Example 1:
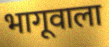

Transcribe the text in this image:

भागूवाला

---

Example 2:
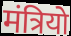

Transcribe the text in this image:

मंत्रियो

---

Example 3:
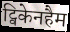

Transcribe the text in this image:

ट्विकेनहैम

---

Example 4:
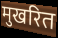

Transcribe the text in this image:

मुखरित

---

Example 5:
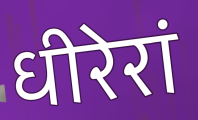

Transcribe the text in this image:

धीरेरां